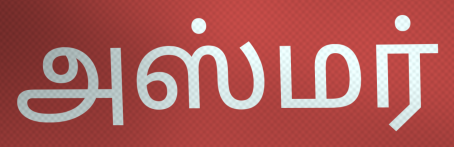
அஸ்மர்